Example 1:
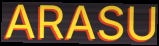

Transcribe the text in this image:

ARASU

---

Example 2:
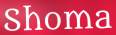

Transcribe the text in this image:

Shoma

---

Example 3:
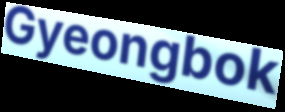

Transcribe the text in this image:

Gyeongbok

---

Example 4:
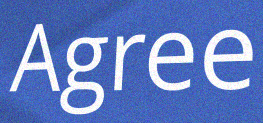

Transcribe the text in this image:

Agree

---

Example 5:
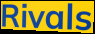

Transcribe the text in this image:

Rivals